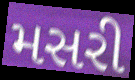
મસરી